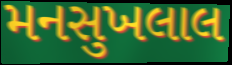
મનસુખલાલ